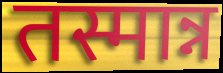
तस्मान्न